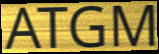
ATGM